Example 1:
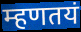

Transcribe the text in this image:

म्हणतयं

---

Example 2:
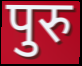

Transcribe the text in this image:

पुरु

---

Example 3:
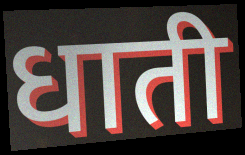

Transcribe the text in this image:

धाती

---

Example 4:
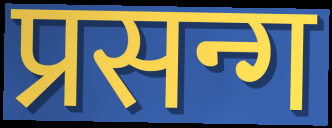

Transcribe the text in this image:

प्रसन्ग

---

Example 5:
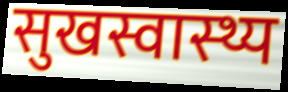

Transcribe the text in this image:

सुखस्वास्थ्य